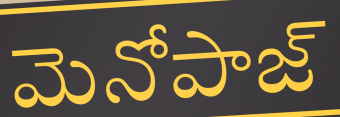
మెనోపాజ్